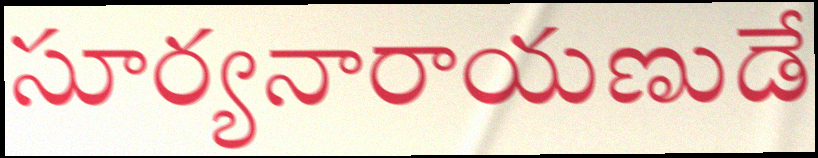
సూర్యనారాయణుడే